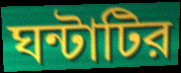
ঘন্টাটির